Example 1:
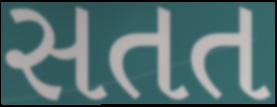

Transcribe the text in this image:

સતત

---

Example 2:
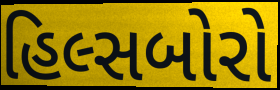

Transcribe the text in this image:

હિલ્સબોરો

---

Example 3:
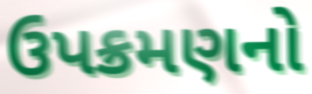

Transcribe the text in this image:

ઉપક્રમણનો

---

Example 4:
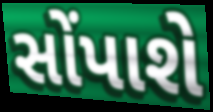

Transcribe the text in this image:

સોંપાશે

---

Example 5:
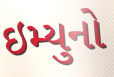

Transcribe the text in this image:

ઇમ્યુનો